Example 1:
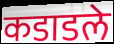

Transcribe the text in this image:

कडाडले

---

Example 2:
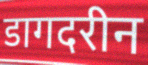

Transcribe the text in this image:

डागदरीन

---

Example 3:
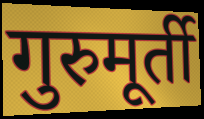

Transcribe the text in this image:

गुरुमूर्ती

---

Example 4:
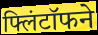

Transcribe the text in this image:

फ्लिंटॉफने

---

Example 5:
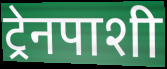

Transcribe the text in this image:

ट्रेनपाशी